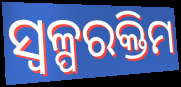
ସ୍ୱଳ୍ପରକ୍ତିମ